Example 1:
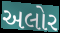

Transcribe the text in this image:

અલોર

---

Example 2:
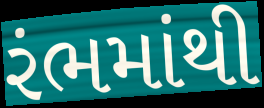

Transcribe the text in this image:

રંભમાંથી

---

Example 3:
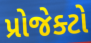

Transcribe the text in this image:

પ્રોજેક્ટો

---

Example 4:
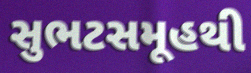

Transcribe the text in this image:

સુભટસમૂહથી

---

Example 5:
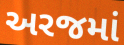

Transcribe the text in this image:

અરજમાં